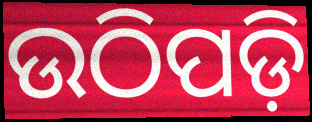
ଉଠିପଡ଼ି